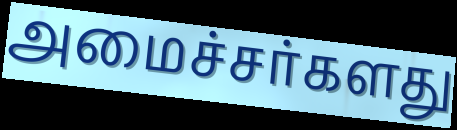
அமைச்சர்களது